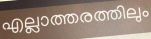
എല്ലാത്തരത്തിലും